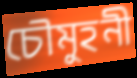
চৌমুহনী